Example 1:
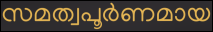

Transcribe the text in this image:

സമത്വപൂർണമായ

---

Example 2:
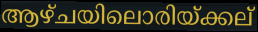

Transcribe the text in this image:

ആഴ്ചയിലൊരിയ്ക്കല്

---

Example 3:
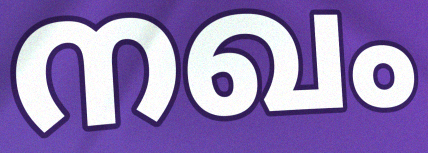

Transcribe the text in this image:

നഖം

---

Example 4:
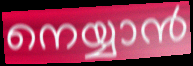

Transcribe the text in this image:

നെയ്യാൻ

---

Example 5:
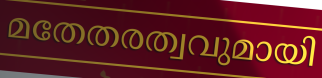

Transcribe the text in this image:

മതേതരത്വവുമായി